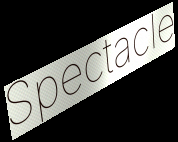
Spectacle